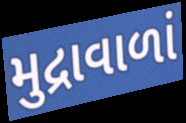
મુદ્રાવાળાં